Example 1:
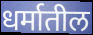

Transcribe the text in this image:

धर्मातील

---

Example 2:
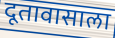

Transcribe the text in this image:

दूतावासाला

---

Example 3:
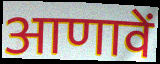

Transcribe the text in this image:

आणावें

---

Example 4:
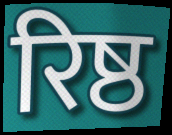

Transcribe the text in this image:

रिष्ठ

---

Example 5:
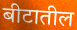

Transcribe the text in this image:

बीटातील